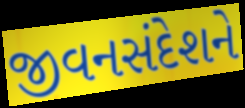
જીવનસંદેશને